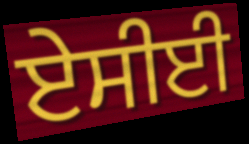
ਏਸੀਈ